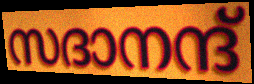
സദാനന്ദ്